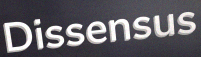
Dissensus